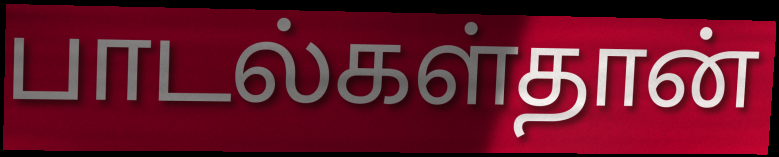
பாடல்கள்தான்